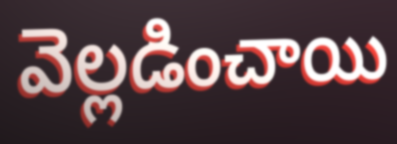
వెల్లడించాయి